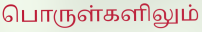
பொருள்களிலும்